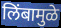
लिंबामुळे